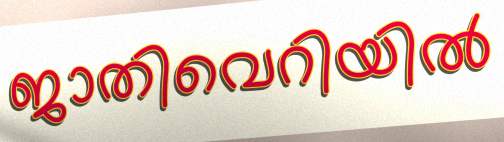
ജാതിവെറിയിൽ